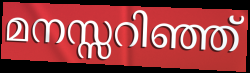
മനസ്സറിഞ്ഞ്